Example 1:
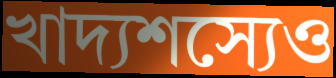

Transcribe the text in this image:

খাদ্যশস্যেও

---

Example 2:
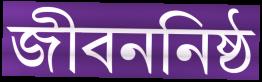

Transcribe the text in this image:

জীবননিষ্ঠ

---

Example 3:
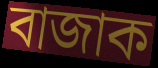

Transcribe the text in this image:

বাজাক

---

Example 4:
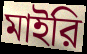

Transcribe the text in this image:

মাইরি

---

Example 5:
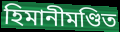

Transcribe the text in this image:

হিমানীমণ্ডিত